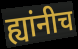
ह्यांनीच